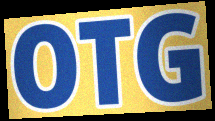
OTG